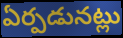
ఏర్పడునట్లు